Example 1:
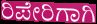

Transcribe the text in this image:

ರಿಪೇರಿಗಾಗಿ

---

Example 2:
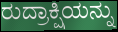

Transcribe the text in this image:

ರುದ್ರಾಕ್ಷಿಯನ್ನು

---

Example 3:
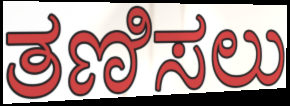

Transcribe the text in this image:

ತಣಿಸಲು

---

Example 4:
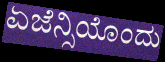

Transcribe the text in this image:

ಏಜೆನ್ಸಿಯೊಂದು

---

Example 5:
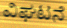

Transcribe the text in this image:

ವಿಘಟನೆ